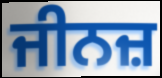
ਜੀਨਜ਼